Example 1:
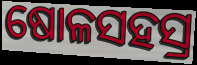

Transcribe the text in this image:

ଷୋଳସହସ୍ର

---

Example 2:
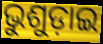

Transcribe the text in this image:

ଭୁଶୁଡ଼ାଇ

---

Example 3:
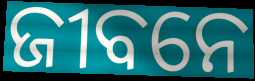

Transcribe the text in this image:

ଜୀବନେ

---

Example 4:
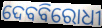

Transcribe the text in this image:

ଦେବବିରୋଧୀ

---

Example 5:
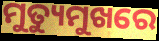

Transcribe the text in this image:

ମୁତ୍ୟୁମୁଖରେ